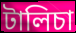
টালিচা